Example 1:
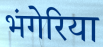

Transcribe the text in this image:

भंगेरिया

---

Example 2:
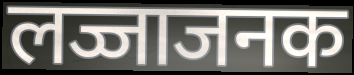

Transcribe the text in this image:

लज्जाजनक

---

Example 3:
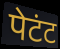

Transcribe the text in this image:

पेटंट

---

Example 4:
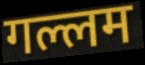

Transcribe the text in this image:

गल्लम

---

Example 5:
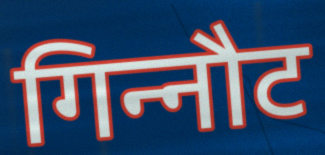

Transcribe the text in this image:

गिन्नौट